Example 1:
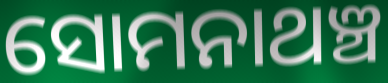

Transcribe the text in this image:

ସୋମନାଥଞ୍ଚ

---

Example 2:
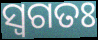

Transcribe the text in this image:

ସ୍ଵଗତଃ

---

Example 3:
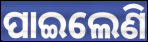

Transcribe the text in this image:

ପାଇଲେଣି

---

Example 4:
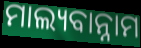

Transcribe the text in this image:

ମାଲ୍ୟବାନ୍ନାମ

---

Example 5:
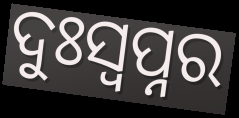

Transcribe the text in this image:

ଦୁଃସ୍ବପ୍ନର